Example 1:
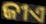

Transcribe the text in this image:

ଜୀଏ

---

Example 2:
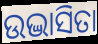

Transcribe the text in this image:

ଉଦ୍ଭାସିତା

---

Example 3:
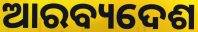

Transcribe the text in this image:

ଆରବ୍ୟଦେଶ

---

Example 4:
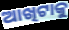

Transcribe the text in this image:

ଆଖିଟାକୁ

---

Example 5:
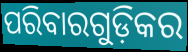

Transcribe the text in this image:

ପରିବାରଗୁଡ଼ିକର